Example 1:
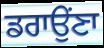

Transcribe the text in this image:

ਡਰਾਉਂਣਾ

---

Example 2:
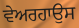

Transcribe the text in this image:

ਵੇਅਰਹਾਉਸ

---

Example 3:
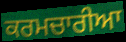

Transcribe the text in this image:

ਕਰਮਚਾਰੀਆ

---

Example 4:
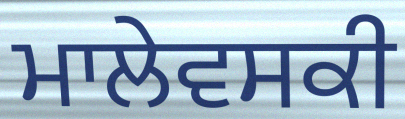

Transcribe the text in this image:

ਮਾਲੇਵਸਕੀ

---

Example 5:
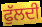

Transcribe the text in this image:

ਫੁੱਲਦੀ